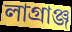
লাগ্ৰাঞ্জ